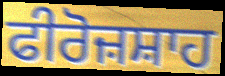
ਫੀਰੋਜ਼ਸ਼ਾਹ